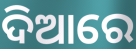
ଦିଆରେ